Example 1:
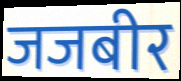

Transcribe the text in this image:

जजबीर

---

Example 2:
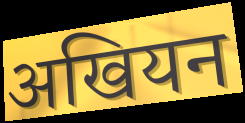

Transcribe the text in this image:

अखियन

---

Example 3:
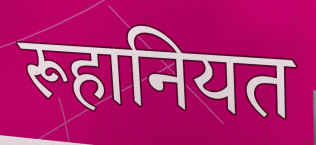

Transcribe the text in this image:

रूहानियत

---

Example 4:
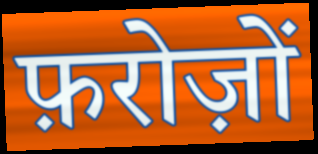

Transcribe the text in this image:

फ़रोज़ों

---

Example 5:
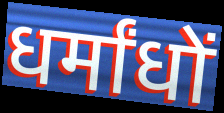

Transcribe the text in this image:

धर्मांधों